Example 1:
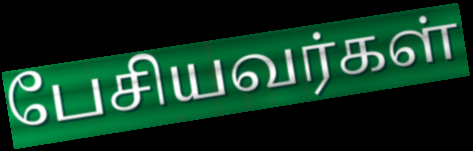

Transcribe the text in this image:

பேசியவர்கள்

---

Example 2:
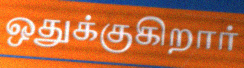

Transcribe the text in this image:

ஒதுக்குகிறார்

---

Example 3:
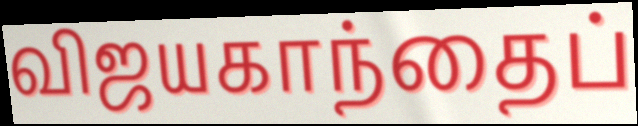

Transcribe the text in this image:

விஜயகாந்தைப்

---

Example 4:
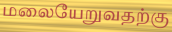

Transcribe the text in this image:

மலையேறுவதற்கு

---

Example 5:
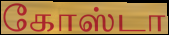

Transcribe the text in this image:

கோஸ்டா